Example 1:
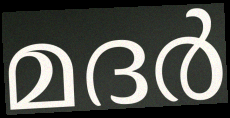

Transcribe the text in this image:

മദർ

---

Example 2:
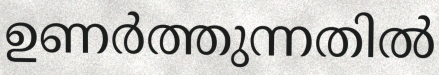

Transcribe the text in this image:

ഉണർത്തുന്നതിൽ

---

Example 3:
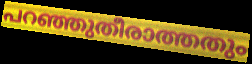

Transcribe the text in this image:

പറഞ്ഞുതീരാത്തതും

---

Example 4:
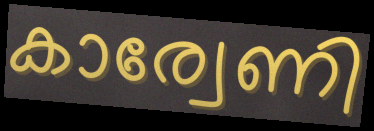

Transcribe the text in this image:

കാര്വേണി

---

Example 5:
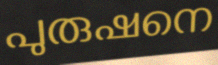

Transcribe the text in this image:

പുരുഷനെ